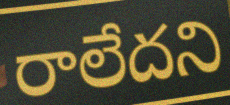
రాలేదని